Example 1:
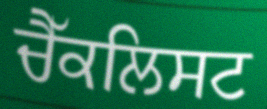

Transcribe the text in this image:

ਚੈੱਕਲਿਸਟ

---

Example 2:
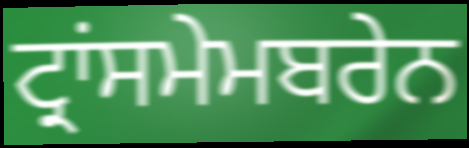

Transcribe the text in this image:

ਟ੍ਰਾਂਸਮੇਮਬਰੇਨ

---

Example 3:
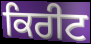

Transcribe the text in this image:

ਕਿਰੀਟ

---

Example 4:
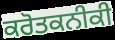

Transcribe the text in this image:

ਕਰੋਤਕਨੀਕੀ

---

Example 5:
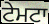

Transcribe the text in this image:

ਟੇਮਟਾ